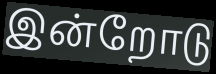
இன்றோடு